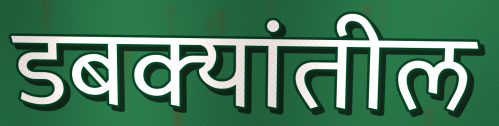
डबक्यांतील